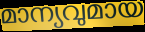
മാന്യവുമായ